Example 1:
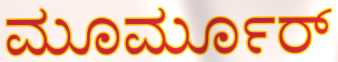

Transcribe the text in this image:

ಮೂರ್ಮೂರ್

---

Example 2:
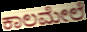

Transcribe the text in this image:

ಕಾಲಮೇಲೆ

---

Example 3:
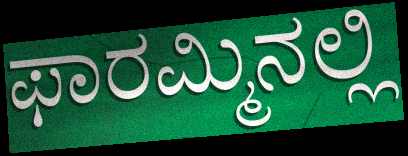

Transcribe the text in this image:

ಫಾರಮ್ಮಿನಲ್ಲಿ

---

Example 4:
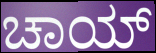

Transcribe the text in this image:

ಚಾಯ್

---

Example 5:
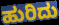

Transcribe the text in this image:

ಹುರಿದು